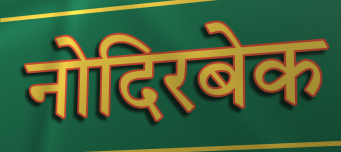
नोदिरबेक